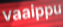
vaaippu